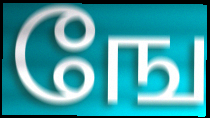
ஙே